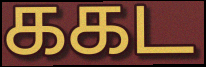
ககட